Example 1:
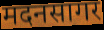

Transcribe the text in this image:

मदनसागर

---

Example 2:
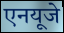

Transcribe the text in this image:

एनयूजे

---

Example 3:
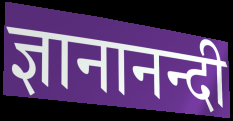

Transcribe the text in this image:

ज्ञानानन्दी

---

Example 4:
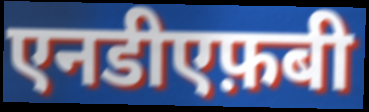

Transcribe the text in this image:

एनडीएफ़बी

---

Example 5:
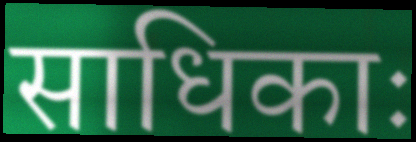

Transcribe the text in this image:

साधिकाः